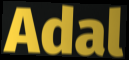
Adal